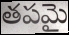
తపమై